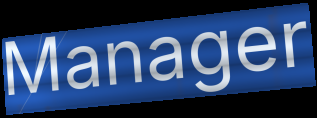
Manager